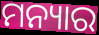
ମନ୍ୟାର